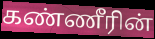
கண்ணீரின்